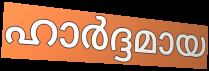
ഹാർദ്ദമായ